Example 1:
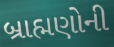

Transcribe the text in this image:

બ્રાહ્મણોની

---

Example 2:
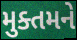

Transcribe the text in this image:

મુક્તમને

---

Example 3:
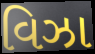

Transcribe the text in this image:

વિઝા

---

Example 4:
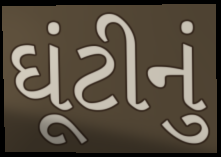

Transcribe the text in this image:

ઘૂંટીનું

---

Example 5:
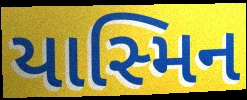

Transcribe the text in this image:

યાસ્મિન